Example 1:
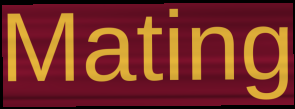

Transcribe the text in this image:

Mating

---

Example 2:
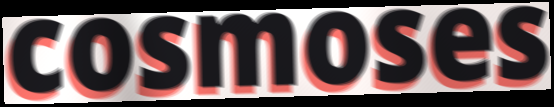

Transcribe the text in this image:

cosmoses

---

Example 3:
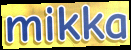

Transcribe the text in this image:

mikka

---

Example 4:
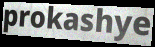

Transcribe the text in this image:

prokashye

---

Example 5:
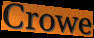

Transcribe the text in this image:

Crowe